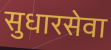
सुधारसेवा